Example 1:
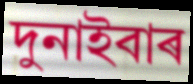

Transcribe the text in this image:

দুনাইবাৰ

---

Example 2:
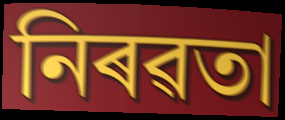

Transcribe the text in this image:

নিৰৱতা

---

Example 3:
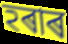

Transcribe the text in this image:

হৰাৰ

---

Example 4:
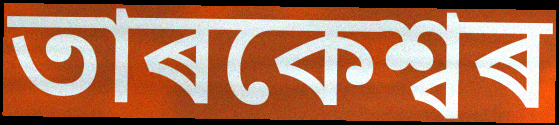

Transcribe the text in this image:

তাৰকেশ্বৰ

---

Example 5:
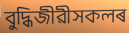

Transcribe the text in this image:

বুদ্ধিজীৱীসকলৰ